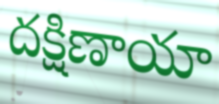
దక్షిణాయా